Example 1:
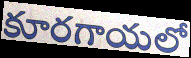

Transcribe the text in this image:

కూరగాయలో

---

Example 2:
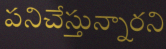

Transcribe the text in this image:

పనిచేస్తున్నారని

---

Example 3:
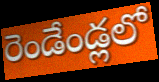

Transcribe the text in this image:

రెండేండ్లలో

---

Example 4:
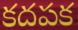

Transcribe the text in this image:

కదపక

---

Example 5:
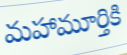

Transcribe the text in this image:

మహామూర్తికి